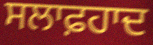
ਸਲਾਫ਼ਹਾਦ